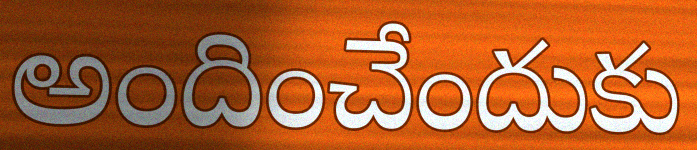
అందించేందుకు